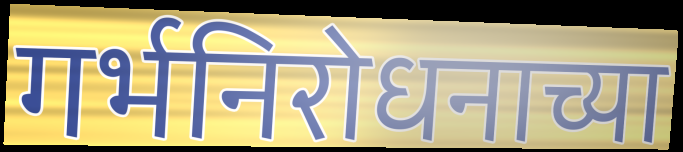
गर्भनिरोधनाच्या